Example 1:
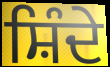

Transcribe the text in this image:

ਸ਼ਿੰਦੇ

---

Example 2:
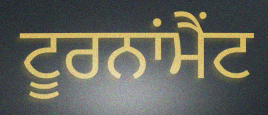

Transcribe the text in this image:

ਟੂਰਨਾਂਮੈਂਟ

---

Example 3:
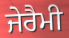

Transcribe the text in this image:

ਜੇਰੈਮੀ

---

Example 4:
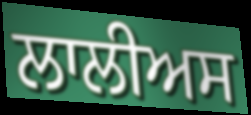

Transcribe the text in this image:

ਲਾਲੀਅਸ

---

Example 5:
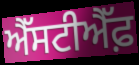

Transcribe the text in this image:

ਐੱਸਟੀਐੱਫ਼